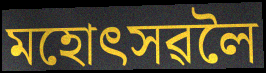
মহোৎসৱলৈ